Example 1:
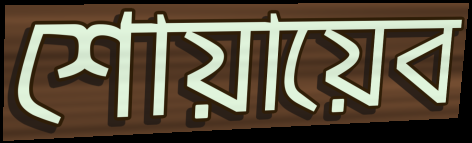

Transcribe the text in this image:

শোয়ায়েব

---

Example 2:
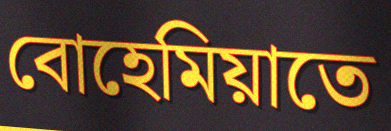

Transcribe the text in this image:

বোহেমিয়াতে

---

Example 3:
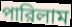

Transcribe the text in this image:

পারিলাম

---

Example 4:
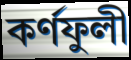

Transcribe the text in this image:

কর্ণফুলী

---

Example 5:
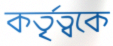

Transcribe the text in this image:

কর্তৃত্বকে